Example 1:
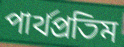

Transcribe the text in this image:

পার্থপ্রতিম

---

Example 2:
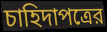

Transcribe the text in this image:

চাহিদাপত্রের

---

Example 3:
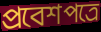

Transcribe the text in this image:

প্রবেশপত্রে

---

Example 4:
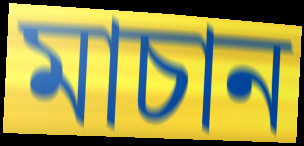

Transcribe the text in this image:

মাচান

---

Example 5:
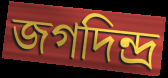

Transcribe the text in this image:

জগদিন্দ্র